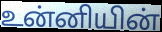
உன்னியின்